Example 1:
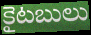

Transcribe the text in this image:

కైటబులు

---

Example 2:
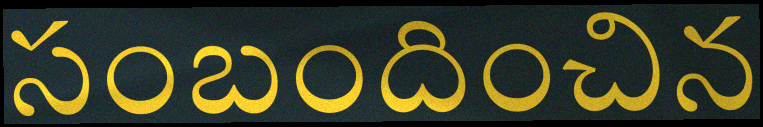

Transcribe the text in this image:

సంబందించిన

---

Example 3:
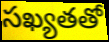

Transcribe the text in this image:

సఖ్యతతో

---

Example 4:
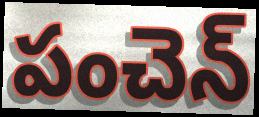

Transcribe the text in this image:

పంచెన్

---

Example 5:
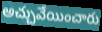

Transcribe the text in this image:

అచ్చువేయించారు